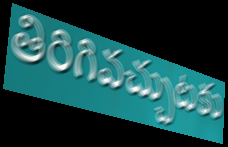
తిరిగివచ్చుటకు